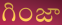
గింజా